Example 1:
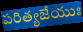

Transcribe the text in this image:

పరిత్యజేయుః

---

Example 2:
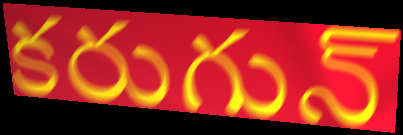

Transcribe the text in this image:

కరుగున్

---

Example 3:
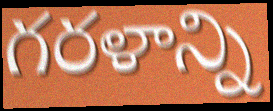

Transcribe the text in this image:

గరళాన్ని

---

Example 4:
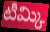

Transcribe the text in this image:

టీమ్కి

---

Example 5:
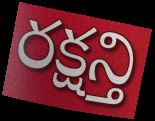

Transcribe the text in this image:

రక్షన్తి